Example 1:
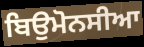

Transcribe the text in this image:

ਬਿਉਮੋਨਸੀਆ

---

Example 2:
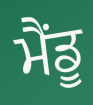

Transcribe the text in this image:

ਮੈਂਡੂ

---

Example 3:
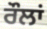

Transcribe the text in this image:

ਰੌਲਾਂ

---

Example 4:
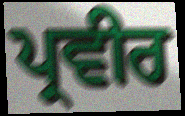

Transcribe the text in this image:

ਪ੍ਰਵੀਰ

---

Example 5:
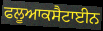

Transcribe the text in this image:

ਫਲੂਆਕਸੈਟਾਈਨ